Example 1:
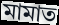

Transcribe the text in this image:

মামাত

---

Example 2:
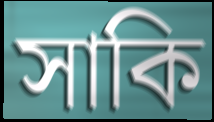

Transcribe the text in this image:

সাকি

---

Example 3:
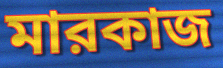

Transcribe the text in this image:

মারকাজ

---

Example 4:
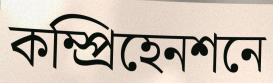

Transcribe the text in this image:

কম্প্রিহেনশনে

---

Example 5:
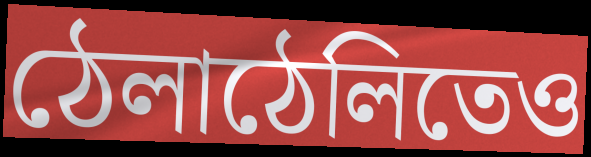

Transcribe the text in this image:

ঠেলাঠেলিতেও